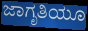
ಜಾಗೃತಿಯೂ